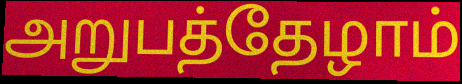
அறுபத்தேழாம்